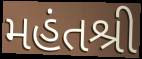
મહંતશ્રી